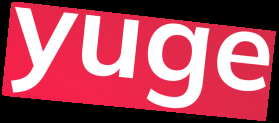
yuge